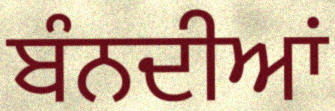
ਬੰਨਦੀਆਂ